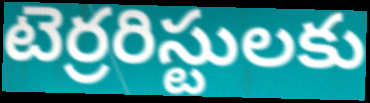
టెర్రరిస్టులకు